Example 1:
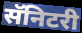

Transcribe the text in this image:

सॅनिटरी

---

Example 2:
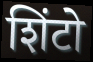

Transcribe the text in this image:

शिंटो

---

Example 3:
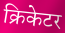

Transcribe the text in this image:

क्रिकेटर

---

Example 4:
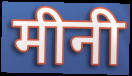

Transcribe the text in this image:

मीनी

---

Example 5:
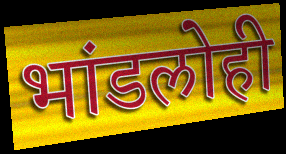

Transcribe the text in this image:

भांडलोही